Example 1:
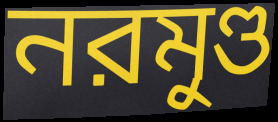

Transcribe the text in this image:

নরমুণ্ড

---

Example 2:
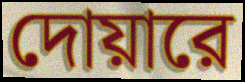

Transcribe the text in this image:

দোয়ারে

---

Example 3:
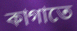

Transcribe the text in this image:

কাগাতে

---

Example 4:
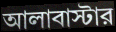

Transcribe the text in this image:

আলাবাস্টার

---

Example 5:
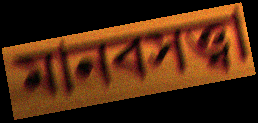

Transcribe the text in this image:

মানবসত্ত্বা